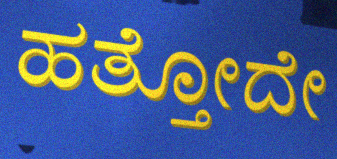
ಹತ್ತೋದೇ